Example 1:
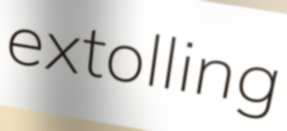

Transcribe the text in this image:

extolling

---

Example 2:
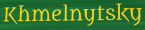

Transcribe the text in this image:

Khmelnytsky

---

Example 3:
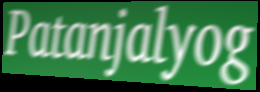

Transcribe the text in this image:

Patanjalyog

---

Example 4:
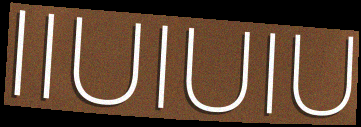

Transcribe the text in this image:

IIUIUIU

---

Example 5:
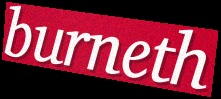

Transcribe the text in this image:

burneth